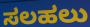
ಸಲಹಲು